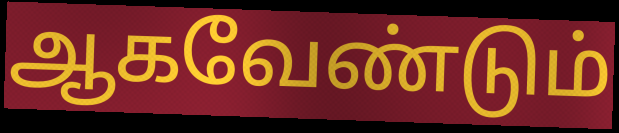
ஆகவேண்டும்